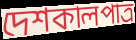
দেশকালপাত্র